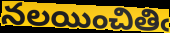
నలయించితిఁ